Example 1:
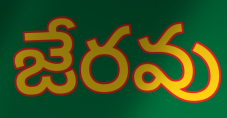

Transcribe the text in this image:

జేరవు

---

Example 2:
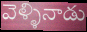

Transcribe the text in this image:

వెళ్ళినాడు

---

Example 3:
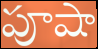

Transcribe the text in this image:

పూషా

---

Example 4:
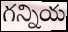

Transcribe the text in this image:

గన్నియ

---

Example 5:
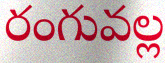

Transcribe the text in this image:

రంగువల్ల